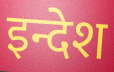
इन्देश